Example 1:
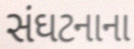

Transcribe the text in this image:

સંઘટનાના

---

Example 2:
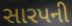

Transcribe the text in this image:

સારપની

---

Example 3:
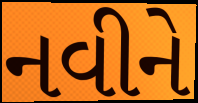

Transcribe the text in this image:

નવીને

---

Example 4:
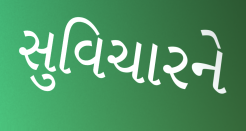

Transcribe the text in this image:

સુવિચારને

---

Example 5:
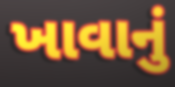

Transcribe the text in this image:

ખાવાનું